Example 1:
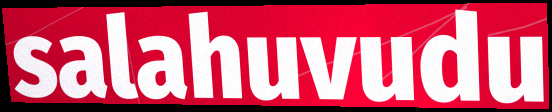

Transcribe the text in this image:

salahuvudu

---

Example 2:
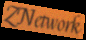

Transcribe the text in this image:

ZNetwork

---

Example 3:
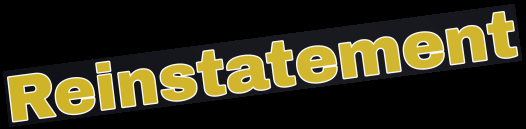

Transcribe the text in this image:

Reinstatement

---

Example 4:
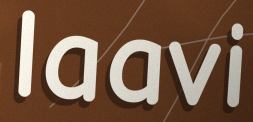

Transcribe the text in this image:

laavi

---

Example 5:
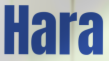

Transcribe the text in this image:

Hara